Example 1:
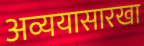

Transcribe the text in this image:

अव्ययासारखा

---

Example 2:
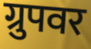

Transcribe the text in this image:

ग्रुपवर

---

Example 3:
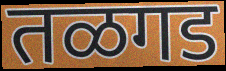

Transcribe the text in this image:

तळगड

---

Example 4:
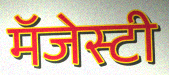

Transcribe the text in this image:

मॅजेस्टी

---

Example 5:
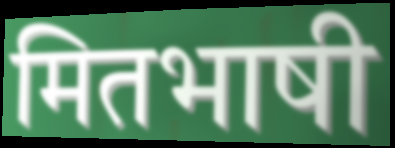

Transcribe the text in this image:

मितभाषी